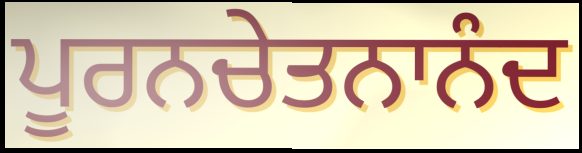
ਪੂਰਨਚੇਤਨਾਨੰਦ